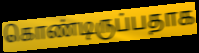
கொண்டிருப்பதாக